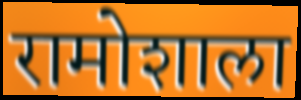
रामोशाला